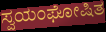
ಸ್ವಯಂಘೋಷಿತ